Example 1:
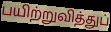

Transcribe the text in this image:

பயிற்றுவித்துப்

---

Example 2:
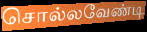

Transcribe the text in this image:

சொல்லவேண்டி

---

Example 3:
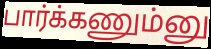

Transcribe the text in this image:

பார்க்கணும்னு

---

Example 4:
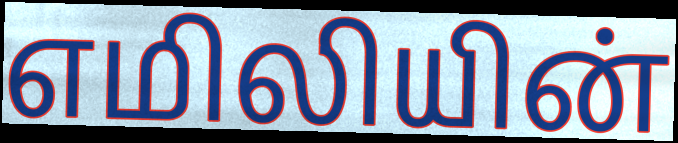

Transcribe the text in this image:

எமிலியின்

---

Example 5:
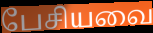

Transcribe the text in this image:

பேசியவை